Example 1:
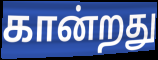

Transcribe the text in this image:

கான்றது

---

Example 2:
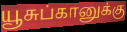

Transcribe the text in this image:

யூசுப்கானுக்கு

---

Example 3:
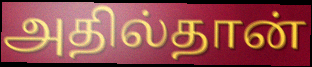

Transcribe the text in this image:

அதில்தான்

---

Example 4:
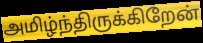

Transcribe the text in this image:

அமிழ்ந்திருக்கிறேன்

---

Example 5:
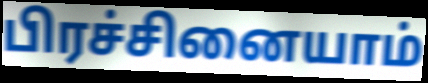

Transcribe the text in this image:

பிரச்சினையாம்